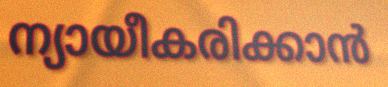
ന്യായീകരിക്കാൻ